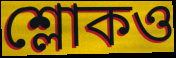
শ্লোকও